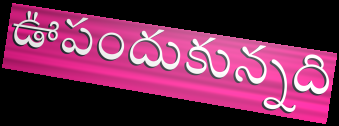
ఊపందుకున్నది